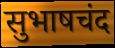
सुभाषचंद